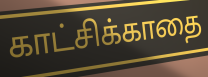
காட்சிக்காதை